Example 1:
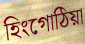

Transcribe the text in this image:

হিংগোঠিয়া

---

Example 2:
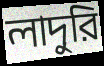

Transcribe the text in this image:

লাদুরি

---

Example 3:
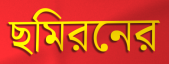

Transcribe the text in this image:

ছমিরনের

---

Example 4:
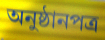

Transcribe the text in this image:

অনুষ্ঠানপত্র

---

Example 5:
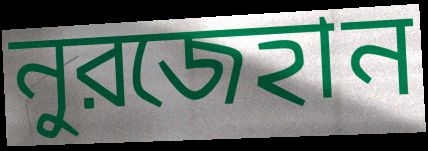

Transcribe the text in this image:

নুরজেহান